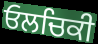
ਓਲਚਿਕੀ